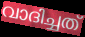
വാദിച്ചത്